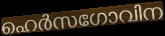
ഹെർസഗോവിന